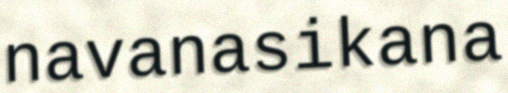
navanasikana